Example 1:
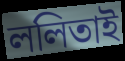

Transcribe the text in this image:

ললিতাই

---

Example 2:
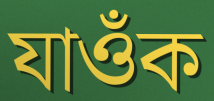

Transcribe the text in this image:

যাওঁক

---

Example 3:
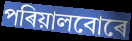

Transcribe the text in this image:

পৰিয়ালবোৰে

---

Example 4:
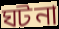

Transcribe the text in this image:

ঘটনা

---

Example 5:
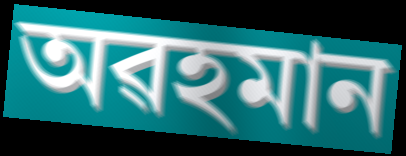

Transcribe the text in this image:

অৱহমান